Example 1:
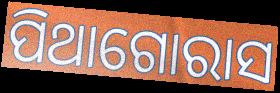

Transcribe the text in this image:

ପିଥାଗୋରାସ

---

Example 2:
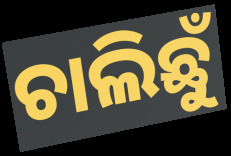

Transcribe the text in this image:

ଚାଲିଛୁଁ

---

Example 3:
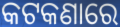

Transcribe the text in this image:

କଟକଣାରେ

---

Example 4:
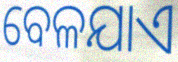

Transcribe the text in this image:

ବେଳଯାଏ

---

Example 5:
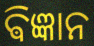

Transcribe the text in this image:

ଵିଜ୍ଞାନ